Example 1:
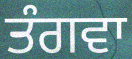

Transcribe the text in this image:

ਤੰਗਵਾ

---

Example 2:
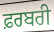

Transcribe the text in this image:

ਫ਼ਰਬਰੀ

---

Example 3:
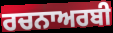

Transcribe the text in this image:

ਰਚਨਾਅਰਬੀ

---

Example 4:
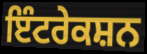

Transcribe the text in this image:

ਇੰਟਰੇਕਸ਼ਨ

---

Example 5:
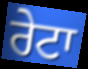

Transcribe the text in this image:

ਰੇਟਾ